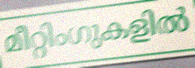
മീറ്റിംഗുകളിൽ